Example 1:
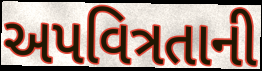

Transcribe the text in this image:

અપવિત્રતાની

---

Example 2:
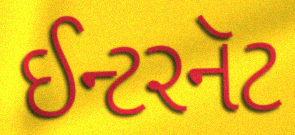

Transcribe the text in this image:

ઈન્ટરનૅટ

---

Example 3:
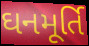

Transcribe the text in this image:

ઘનમૂર્તિ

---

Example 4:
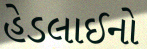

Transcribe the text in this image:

હેડલાઈનો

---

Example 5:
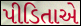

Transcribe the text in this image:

પીડિતાએ